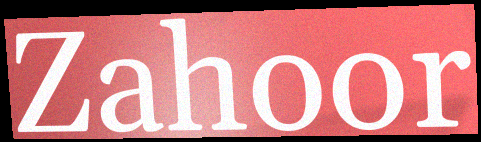
Zahoor